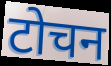
टोचन